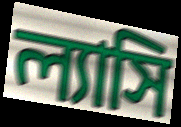
ল্যাসি